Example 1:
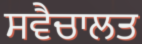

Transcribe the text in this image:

ਸਵੈਚਾਲਤ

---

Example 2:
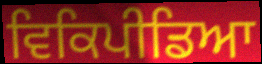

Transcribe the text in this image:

ਵਿਕਿਪੀਡਿਆ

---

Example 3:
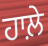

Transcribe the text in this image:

ਹਾਲ਼ੇ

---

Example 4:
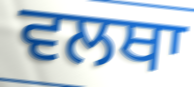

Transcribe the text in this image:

ਵਲਥਾ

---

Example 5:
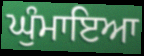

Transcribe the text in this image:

ਘੁੰਮਾਇਆ